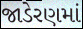
જાડેરણમાં